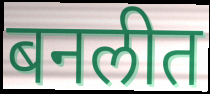
बनलीत